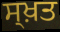
ਸ੍ਖ਼ਤ